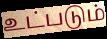
உட்படும்